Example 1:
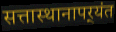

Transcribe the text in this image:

सत्तास्थानापर्यंत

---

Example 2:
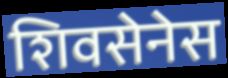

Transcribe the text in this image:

शिवसेनेस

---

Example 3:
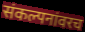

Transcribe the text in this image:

संकल्पनांवरच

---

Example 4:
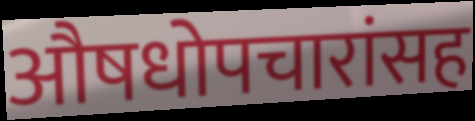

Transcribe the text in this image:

औषधोपचारांसह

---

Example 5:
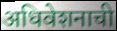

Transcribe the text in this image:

अधिवेशनाची